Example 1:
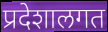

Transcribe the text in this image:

प्रदेशालगत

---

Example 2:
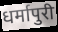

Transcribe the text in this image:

धर्मापुरी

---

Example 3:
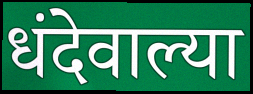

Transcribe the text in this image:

धंदेवाल्या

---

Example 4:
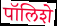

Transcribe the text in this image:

पॉलिशे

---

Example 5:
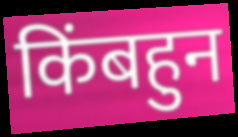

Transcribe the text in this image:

किंबहुन